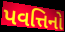
પવત્તિનો